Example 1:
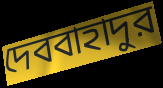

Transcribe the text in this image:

দেববাহাদুর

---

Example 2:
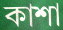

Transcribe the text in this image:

কাশা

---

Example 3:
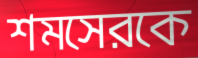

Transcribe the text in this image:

শমসেরকে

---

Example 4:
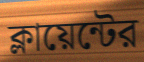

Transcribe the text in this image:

ক্লায়েন্টের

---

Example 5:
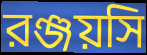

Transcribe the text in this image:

রঞ্জয়সি